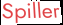
Spiller